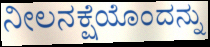
ನೀಲನಕ್ಷೆಯೊಂದನ್ನು